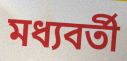
মধ্যবর্তী